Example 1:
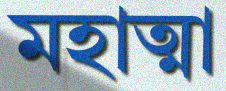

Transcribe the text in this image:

মহাত্মা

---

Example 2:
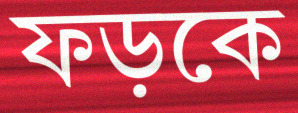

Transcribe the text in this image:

ফড়কে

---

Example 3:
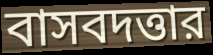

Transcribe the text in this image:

বাসবদত্তার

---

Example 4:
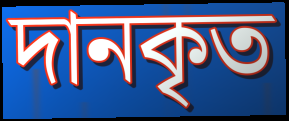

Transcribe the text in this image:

দানকৃত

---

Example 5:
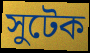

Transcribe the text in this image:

সুটেক